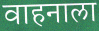
वाहनाला